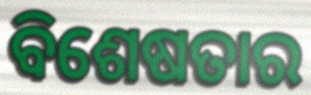
ବିଶେଷତାର